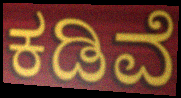
ಕಡಿವೆ